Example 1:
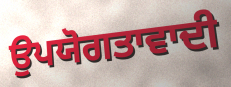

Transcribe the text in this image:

ਉਪਯੋਗਤਾਵਾਦੀ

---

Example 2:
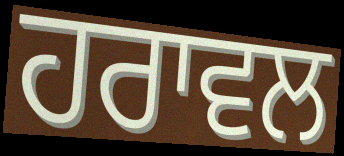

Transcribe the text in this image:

ਹਰਾਵਲ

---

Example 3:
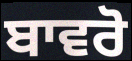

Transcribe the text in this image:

ਬਾਵਰੋ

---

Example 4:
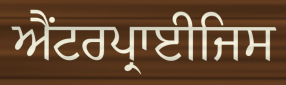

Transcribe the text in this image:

ਐਂਟਰਪ੍ਰਾਈਜਿਸ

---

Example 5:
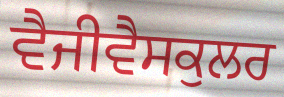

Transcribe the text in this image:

ਵੈਜੀਵੈਸਕੁਲਰ